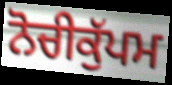
ਨੋਚੀਕੁੱਪਮ